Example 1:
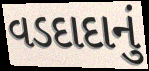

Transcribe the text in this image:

વડદાદાનું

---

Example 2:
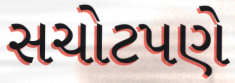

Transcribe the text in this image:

સચોટપણે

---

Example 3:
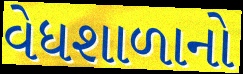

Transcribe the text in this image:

વેધશાળાનો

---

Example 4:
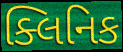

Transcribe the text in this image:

ક્લિનિક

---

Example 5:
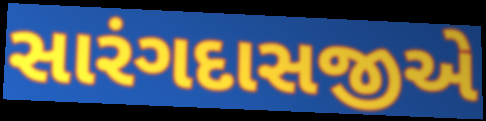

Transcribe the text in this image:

સારંગદાસજીએ